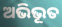
ଅଭିଭୂତ